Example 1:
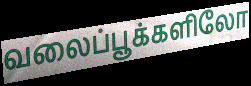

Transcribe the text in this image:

வலைப்பூக்களிலோ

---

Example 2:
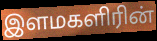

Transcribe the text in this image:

இளமகளிரின்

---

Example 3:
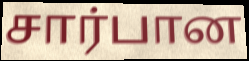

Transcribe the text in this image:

சார்பான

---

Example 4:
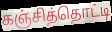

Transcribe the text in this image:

கஞ்சித்தொட்டி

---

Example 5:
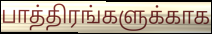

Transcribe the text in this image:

பாத்திரங்களுக்காக